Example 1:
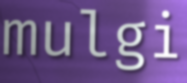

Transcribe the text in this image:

mulgi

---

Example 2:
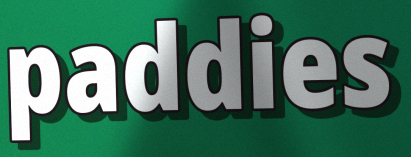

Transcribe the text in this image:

paddies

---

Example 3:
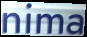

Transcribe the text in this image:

nima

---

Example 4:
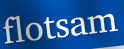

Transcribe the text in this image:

flotsam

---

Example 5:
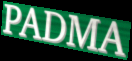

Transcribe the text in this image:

PADMA